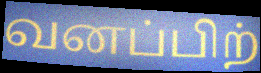
வனப்பிற்